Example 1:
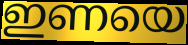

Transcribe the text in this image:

ഇണയെ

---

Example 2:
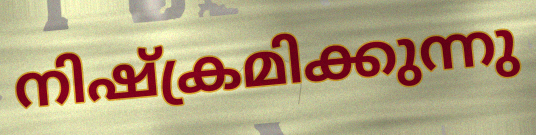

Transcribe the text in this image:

നിഷ്ക്രമിക്കുന്നു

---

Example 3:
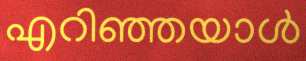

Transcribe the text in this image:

എറിഞ്ഞയാൾ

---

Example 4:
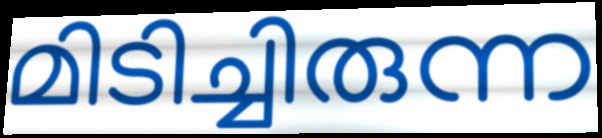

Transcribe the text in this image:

മിടിച്ചിരുന്ന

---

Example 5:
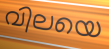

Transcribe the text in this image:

വിലയെ